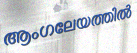
ആംഗലേയത്തിൽ